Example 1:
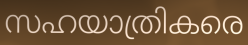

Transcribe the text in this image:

സഹയാത്രികരെ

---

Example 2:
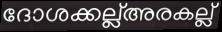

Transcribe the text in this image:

ദോശക്കല്ല്അരകല്ല്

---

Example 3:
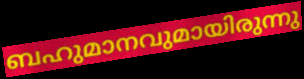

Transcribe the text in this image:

ബഹുമാനവുമായിരുന്നു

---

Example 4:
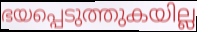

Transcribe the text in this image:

ഭയപ്പെടുത്തുകയില്ല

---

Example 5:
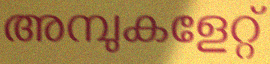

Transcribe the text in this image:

അമ്പുകളേറ്റ്